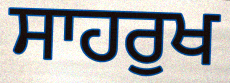
ਸਾਹਰੁਖ